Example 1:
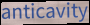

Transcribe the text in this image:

anticavity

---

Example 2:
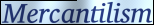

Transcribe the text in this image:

Mercantilism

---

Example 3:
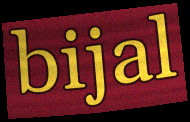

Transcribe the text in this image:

bijal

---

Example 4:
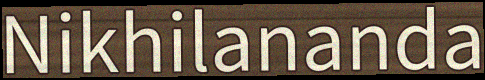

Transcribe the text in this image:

Nikhilananda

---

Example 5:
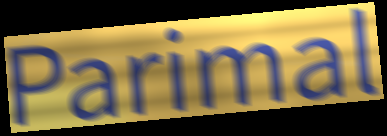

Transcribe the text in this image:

Parimal